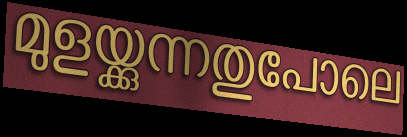
മുളയ്ക്കുന്നതുപോലെ